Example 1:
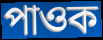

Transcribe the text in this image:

পাওক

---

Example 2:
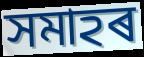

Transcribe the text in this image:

সমাহৰ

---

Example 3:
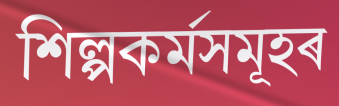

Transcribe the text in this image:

শিল্পকৰ্মসমূহৰ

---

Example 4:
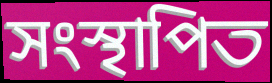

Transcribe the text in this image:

সংস্থাপিত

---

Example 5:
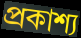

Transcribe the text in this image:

প্ৰকাশ্য